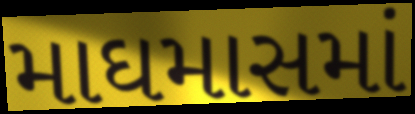
માઘમાસમાં